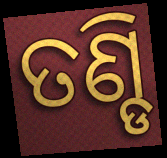
ତଣ୍ଡି